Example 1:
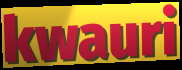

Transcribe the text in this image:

kwauri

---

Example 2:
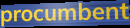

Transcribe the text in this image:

procumbent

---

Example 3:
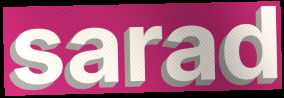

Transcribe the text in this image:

sarad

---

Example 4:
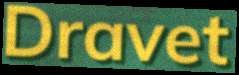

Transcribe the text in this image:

Dravet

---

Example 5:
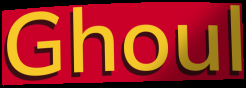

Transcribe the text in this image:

Ghoul